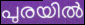
പുരയിൽ